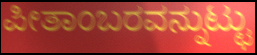
ಪೀತಾಂಬರವನ್ನುಟ್ಟು